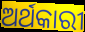
ଅର୍ଥକାରୀ